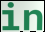
in